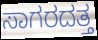
ಸಾಗರದತ್ತ